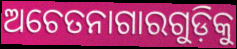
ଅଚେତନାଗାରଗୁଡ଼ିକୁ